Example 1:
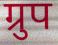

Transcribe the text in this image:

ग्रुप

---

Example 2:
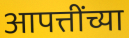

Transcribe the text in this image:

आपत्तींच्या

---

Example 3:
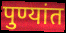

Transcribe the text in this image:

पुण्यांत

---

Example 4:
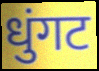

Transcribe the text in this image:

धुंगट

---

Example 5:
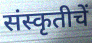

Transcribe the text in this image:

संस्कृतीचें